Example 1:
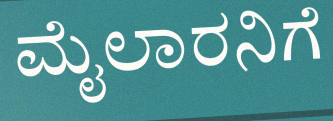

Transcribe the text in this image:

ಮೈಲಾರನಿಗೆ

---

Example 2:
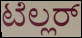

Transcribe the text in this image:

ಟೆಲ್ಲರ್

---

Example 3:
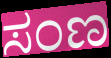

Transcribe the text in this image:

ಸಂಣ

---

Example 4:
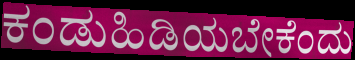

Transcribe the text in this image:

ಕಂಡುಹಿಡಿಯಬೇಕೆಂದು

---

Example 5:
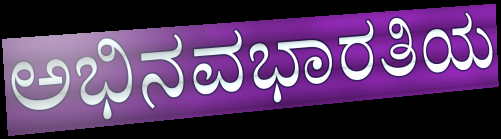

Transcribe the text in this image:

ಅಭಿನವಭಾರತಿಯ